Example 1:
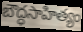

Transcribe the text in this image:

బౌద్ధసాహిత్యం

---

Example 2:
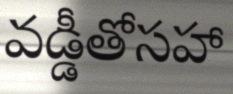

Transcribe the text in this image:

వడ్డీతోసహా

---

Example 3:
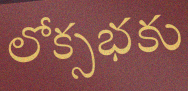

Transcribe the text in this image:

లోక్సభకు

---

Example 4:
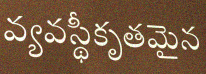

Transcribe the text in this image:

వ్యవస్థీకృతమైన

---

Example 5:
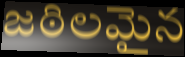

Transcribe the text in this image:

జఠిలమైన